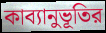
কাব্যানুভূতির